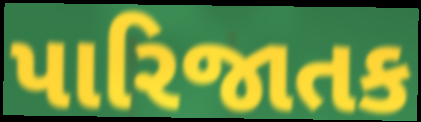
પારિજાતક